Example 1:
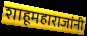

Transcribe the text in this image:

शाहूमहाराजांनी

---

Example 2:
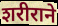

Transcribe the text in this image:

शरीराने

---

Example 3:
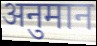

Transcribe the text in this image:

अनुमान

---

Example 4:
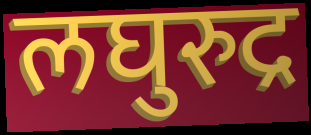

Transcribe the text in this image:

लघुरुद्र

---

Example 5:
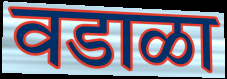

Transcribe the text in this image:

वडाळा